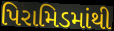
પિરામિડમાંથી